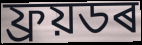
ফ্ৰয়ডৰ